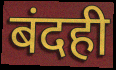
बंदही